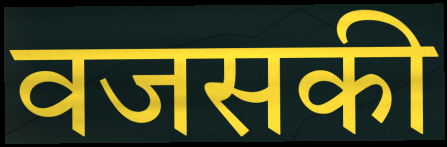
वजसकी